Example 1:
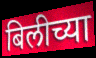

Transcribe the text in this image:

बिलीच्या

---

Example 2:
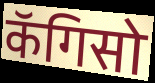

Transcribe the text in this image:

कॅगिसो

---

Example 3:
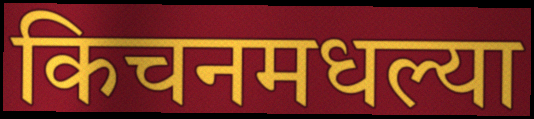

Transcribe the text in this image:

किचनमधल्या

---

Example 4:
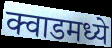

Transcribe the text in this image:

क्वाडमध्ये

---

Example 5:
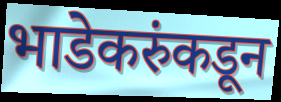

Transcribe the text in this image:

भाडेकरुंकडून